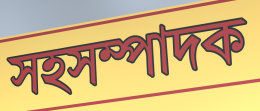
সহসম্পাদক